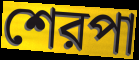
শেরপা